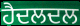
ਹੈਦਲਦਲ